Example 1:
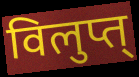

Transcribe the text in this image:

विलुप्त्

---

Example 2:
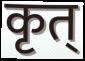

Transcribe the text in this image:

कृत्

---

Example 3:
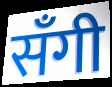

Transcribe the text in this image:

सँगी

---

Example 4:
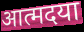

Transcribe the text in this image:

आत्मदया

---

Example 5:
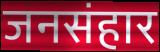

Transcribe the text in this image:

जनसंहार